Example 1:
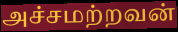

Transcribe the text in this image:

அச்சமற்றவன்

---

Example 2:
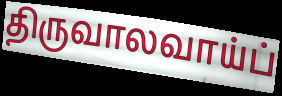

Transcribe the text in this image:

திருவாலவாய்ப்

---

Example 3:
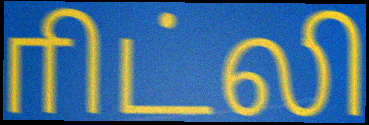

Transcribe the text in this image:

ரிட்லி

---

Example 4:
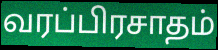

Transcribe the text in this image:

வரப்பிரசாதம்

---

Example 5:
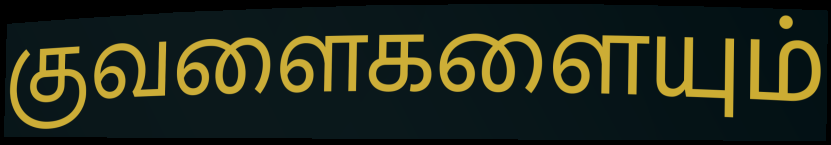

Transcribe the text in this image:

குவளைகளையும்